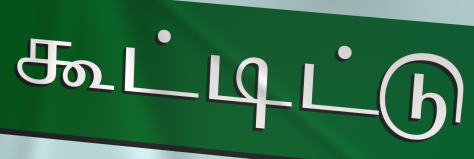
கூட்டிட்டு